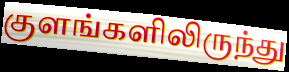
குளங்களிலிருந்து